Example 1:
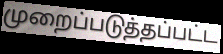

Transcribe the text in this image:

முறைப்படுத்தப்பட்ட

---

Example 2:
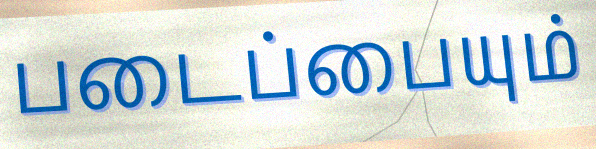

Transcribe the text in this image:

படைப்பையும்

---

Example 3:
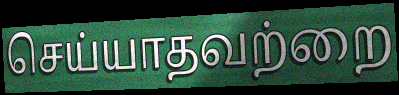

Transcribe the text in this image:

செய்யாதவற்றை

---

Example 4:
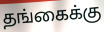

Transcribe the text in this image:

தங்கைக்கு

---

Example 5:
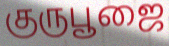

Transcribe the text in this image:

குருபூஜை